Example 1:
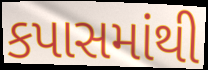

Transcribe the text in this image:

કપાસમાંથી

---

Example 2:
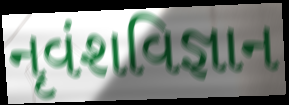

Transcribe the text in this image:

નૃવંશવિજ્ઞાન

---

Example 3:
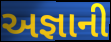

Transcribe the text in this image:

અજ્ઞાની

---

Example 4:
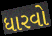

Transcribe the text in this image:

ધારવો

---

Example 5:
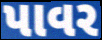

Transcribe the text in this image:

પાવર